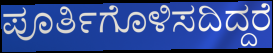
ಪೂರ್ತಿಗೊಳಿಸದಿದ್ದರೆ